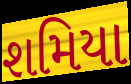
શમિયા